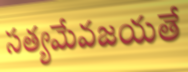
సత్యమేవజయతే